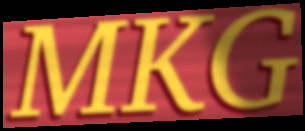
MKG